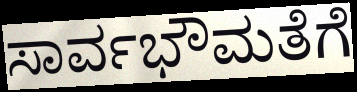
ಸಾರ್ವಭೌಮತೆಗೆ